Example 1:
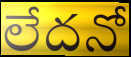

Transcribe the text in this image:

లేదనో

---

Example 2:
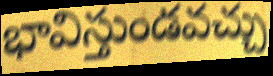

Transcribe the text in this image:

భావిస్తుండవచ్చు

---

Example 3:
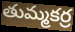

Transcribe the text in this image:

తుమ్మకర్ర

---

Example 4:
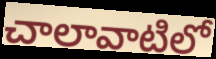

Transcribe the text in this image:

చాలావాటిలో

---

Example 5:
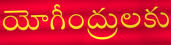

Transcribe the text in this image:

యోగీంద్రులకు